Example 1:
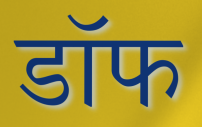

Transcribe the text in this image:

डॉफ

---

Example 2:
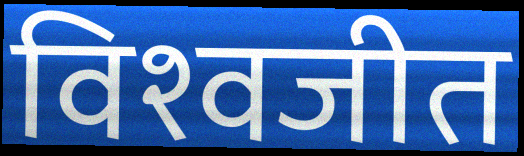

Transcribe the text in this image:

विश्वजीत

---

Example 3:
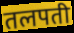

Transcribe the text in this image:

तलपती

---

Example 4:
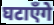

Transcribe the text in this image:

घटाएँगे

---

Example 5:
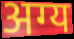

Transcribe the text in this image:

अग्य